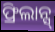
ଫ୍ରିଲାନ୍ସ୍